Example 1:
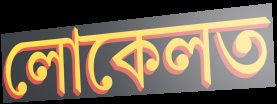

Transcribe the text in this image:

লোকেলত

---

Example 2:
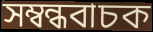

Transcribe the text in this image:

সম্বন্ধবাচক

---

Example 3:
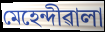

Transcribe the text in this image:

মেহেন্দীৱালা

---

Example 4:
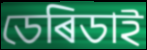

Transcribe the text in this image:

ডেৰিডাই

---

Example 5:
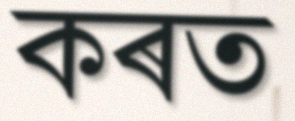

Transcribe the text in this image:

কৰত